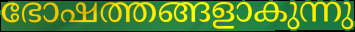
ഭോഷത്തങ്ങളാകുന്നു